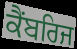
ਕੈਂਬਰਿਜ